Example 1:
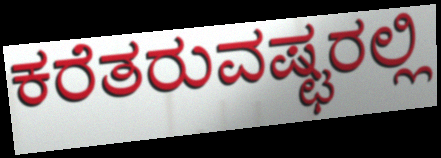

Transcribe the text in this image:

ಕರೆತರುವಷ್ಟರಲ್ಲಿ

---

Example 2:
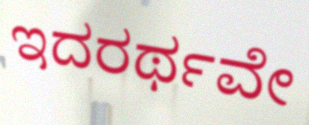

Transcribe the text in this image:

ಇದರರ್ಥವೇ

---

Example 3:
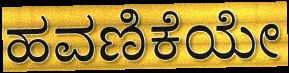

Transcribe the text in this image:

ಹವಣಿಕೆಯೇ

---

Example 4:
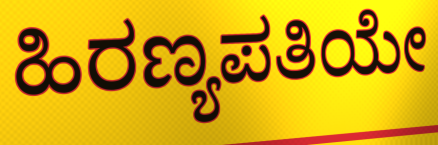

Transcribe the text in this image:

ಹಿರಣ್ಯಪತಿಯೇ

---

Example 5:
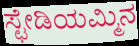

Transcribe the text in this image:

ಸ್ಟೇಡಿಯಮ್ಮಿನ